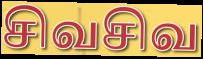
சிவசிவ